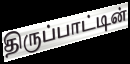
திருப்பாட்டின்